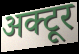
अक्टूर